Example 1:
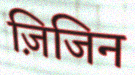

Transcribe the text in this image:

ज़िजिन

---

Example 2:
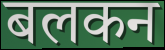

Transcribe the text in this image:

बलकन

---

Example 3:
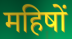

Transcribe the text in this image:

महिषों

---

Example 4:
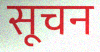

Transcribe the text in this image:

सूचन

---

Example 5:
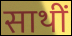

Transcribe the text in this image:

साथीं